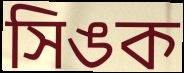
সিঙক